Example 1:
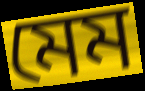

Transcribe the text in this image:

মেম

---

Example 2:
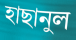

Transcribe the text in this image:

হাছানুল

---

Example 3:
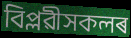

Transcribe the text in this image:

বিপ্লৱীসকলৰ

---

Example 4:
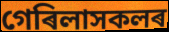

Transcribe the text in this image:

গেৰিলাসকলৰ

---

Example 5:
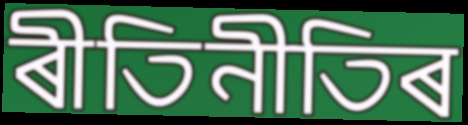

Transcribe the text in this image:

ৰীতিনীতিৰ